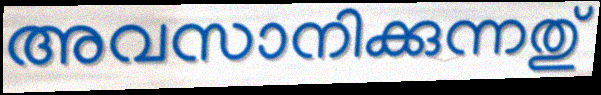
അവസാനിക്കുന്നതു്